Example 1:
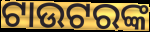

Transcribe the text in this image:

ଟାଉଟରଙ୍କ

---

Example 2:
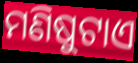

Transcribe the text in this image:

ମଣିଷୁଟାଏ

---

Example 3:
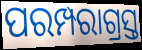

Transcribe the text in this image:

ପରମ୍ପରାଗ୍ରସ୍ତ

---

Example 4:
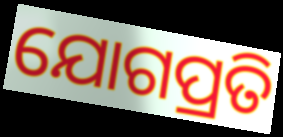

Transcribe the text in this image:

ଯୋଗପ୍ରତି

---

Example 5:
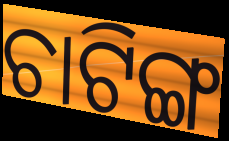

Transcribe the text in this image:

ଚାଟିଙ୍ଗ